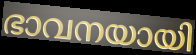
ഭാവനയായി